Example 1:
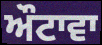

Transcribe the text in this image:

ਔਟਾਵਾ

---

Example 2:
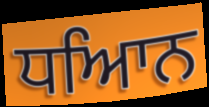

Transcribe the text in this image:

ਧਆਿਨ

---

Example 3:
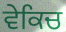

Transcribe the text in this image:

ਵੇਕਿਚ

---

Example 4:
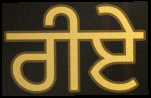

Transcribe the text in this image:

ਰੀਏ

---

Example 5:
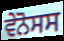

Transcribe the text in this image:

ਵੇਨੋਸਸ